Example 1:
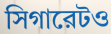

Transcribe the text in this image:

সিগারেটও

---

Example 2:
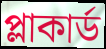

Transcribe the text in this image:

প্লাকার্ড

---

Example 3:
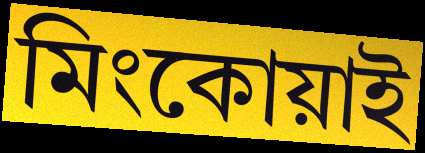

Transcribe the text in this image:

মিংকোয়াই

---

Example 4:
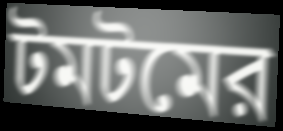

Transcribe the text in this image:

টমটমের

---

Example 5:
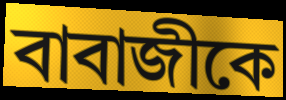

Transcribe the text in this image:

বাবাজীকে